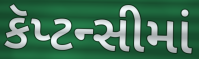
કૅપ્ટન્સીમાં